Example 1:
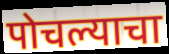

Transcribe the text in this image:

पोचल्याचा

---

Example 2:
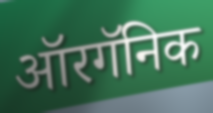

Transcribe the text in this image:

ऑरगॅनिक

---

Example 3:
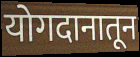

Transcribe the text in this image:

योगदानातून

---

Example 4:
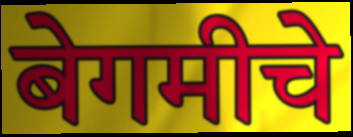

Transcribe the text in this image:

बेगमीचे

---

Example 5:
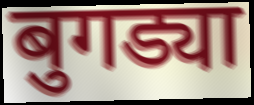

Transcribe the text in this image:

बुगड्या